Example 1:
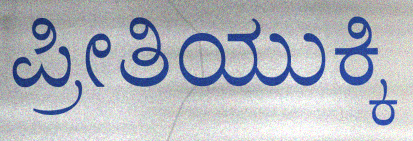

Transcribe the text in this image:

ಪ್ರೀತಿಯುಕ್ಕಿ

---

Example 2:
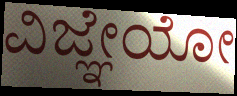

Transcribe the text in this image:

ವಿಜ್ಞೇಯೋ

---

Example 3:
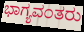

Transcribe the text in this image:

ಭಾಗ್ಯವಂತರು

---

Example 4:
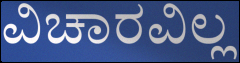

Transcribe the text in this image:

ವಿಚಾರವಿಲ್ಲ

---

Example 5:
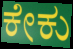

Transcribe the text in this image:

ಕೇಕು